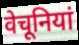
वेचूनियां